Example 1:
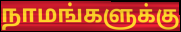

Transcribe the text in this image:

நாமங்களுக்கு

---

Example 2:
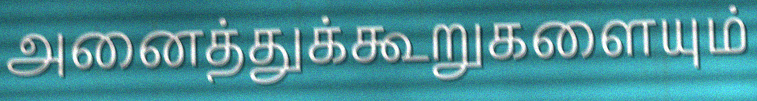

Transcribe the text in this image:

அனைத்துக்கூறுகளையும்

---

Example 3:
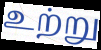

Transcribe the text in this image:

உற்று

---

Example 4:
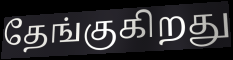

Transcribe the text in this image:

தேங்குகிறது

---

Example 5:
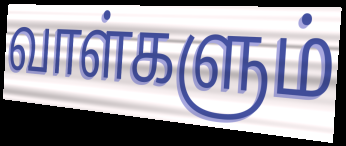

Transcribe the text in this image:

வாள்களும்